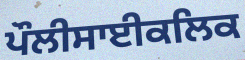
ਪੌਲੀਸਾਈਕਲਿਕ